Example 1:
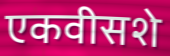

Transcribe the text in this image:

एकवीसशे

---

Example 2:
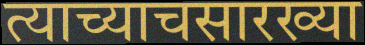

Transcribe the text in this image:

त्याच्याचसारख्या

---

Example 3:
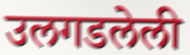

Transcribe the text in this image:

उलगडलेली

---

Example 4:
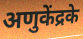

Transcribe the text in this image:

अणुकेंद्रके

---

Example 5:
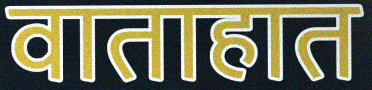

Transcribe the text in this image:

वाताहात